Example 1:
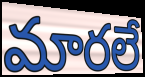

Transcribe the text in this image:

మారలే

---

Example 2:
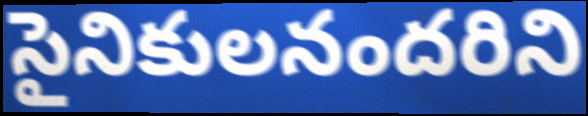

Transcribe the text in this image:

సైనికులనందరిని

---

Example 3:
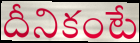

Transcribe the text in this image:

దీనికంటే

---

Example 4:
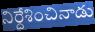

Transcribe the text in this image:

నిర్దేశించినాడు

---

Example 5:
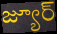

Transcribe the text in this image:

జ్యూర్